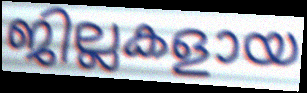
ജില്ലകളായ